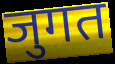
जुगत